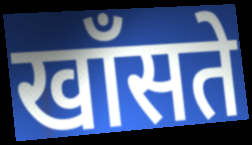
खाँसते